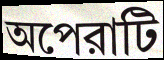
অপেরাটি